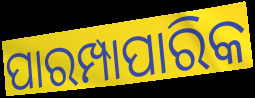
ପାରମ୍ପାପାରିକ